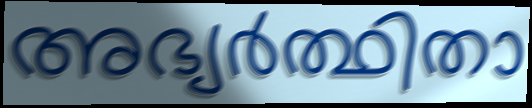
അഭ്യർത്ഥിതാ